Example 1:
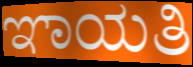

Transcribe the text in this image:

ಞಾಯತಿ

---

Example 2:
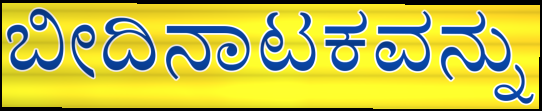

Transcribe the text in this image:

ಬೀದಿನಾಟಕವನ್ನು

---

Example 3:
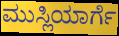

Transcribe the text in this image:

ಮುಸ್ಲಿಯಾರ್ಗೆ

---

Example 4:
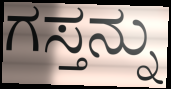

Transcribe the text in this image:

ಗಸ್ತನ್ನು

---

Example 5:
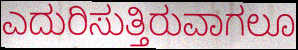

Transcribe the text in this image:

ಎದುರಿಸುತ್ತಿರುವಾಗಲೂ